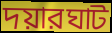
দয়ারঘাট